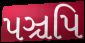
પઞ્ચપિ